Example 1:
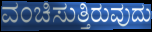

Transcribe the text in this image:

ವಂಚಿಸುತ್ತಿರುವುದು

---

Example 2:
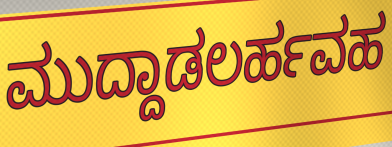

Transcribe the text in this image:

ಮುದ್ದಾಡಲರ್ಹವಹ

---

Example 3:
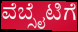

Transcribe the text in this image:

ವೆಬ್ಸೈಟಿಗೆ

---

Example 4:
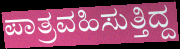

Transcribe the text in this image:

ಪಾತ್ರವಹಿಸುತ್ತಿದ್ದ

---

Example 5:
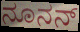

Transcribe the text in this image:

ನೂನನ್